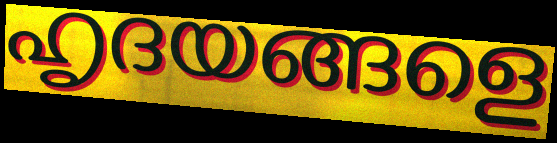
ഹൃദയങ്ങളെ